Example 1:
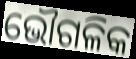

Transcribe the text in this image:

ଭୌଗଳିକ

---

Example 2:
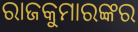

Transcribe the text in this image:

ରାଜକୁମାରଙ୍କର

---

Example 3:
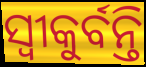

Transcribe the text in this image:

ସ୍ଵୀକୁର୍ବନ୍ତି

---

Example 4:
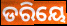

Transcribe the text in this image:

ଡରିୟେ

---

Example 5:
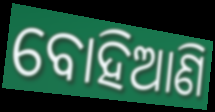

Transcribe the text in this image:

ବୋହିଆଣି